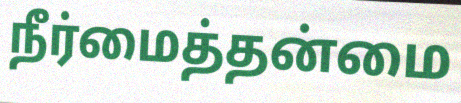
நீர்மைத்தன்மை